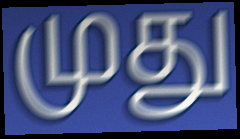
முது